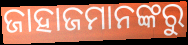
ଜାହାଜମାନଙ୍କରୁ